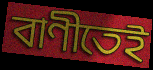
বাণীতেই